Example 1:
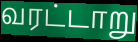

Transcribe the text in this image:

வரட்டாறு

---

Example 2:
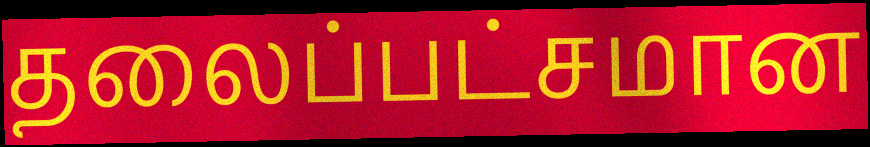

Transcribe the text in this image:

தலைப்பட்சமான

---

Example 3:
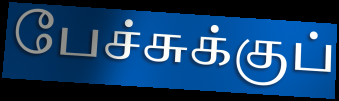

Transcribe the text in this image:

பேச்சுக்குப்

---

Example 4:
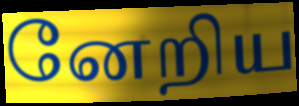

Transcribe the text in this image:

னேறிய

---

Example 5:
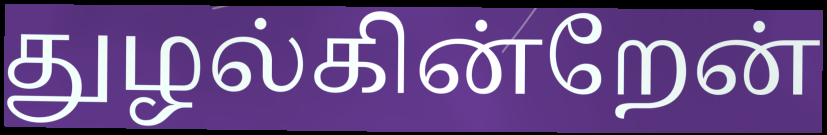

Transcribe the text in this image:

துழல்கின்றேன்